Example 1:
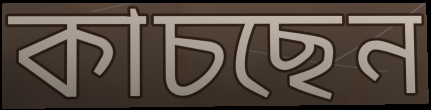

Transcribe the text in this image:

কাচছেন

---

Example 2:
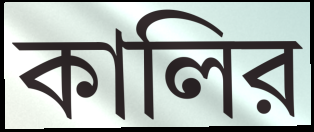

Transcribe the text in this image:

কালির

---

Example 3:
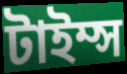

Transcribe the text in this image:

টাইম্স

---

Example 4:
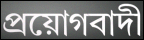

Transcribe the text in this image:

প্রয়োগবাদী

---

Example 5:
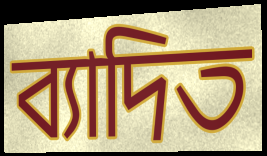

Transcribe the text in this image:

ব্যাদিত